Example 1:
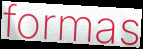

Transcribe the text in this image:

formas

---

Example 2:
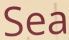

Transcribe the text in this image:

Sea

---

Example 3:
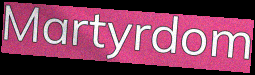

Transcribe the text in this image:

Martyrdom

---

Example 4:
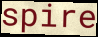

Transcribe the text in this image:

spire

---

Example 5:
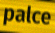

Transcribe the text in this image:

palce